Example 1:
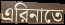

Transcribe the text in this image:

এরিনাতে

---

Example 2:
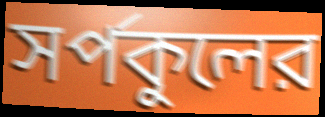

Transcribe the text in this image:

সর্পকুলের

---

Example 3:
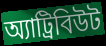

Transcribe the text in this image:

অ্যাট্রিবিউট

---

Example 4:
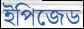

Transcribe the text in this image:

ইপিজেড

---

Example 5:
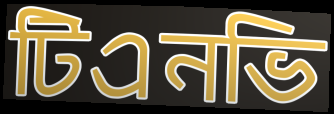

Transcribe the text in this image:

টিএনভি